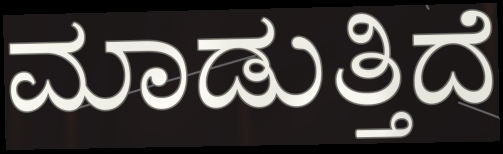
ಮಾಡುತ್ತಿದೆ